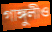
গাঙ্গুলীও